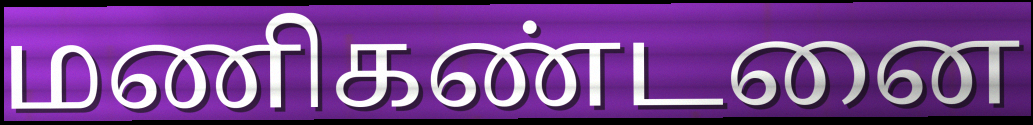
மணிகண்டனை